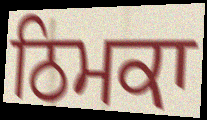
ਠਿਮਕਾ